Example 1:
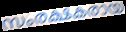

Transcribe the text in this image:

സംരക്ഷകരായ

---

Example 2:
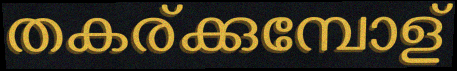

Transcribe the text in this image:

തകര്ക്കുമ്പോള്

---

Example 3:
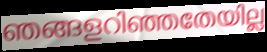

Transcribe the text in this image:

ഞങ്ങളറിഞ്ഞതേയില്ല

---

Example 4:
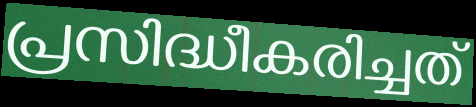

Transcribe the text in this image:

പ്രസിദ്ധീകരിച്ചത്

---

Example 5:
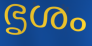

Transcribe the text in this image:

ഭൃശം